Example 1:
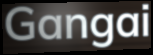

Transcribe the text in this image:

Gangai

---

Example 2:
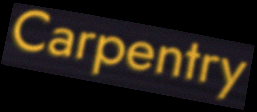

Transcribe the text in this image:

Carpentry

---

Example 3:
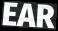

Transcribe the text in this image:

EAR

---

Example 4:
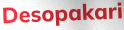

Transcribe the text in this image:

Desopakari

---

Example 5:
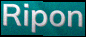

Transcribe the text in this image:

Ripon